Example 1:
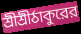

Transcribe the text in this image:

শ্রীশ্রীঠাকুরের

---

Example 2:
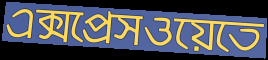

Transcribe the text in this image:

এক্সপ্রেসওয়েতে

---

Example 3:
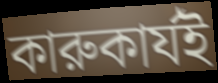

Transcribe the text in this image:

কারুকার্যই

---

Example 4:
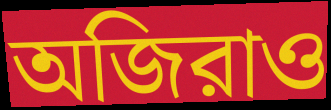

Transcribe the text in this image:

অজিরাও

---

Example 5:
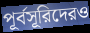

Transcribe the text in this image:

পূর্বসূরিদেরও